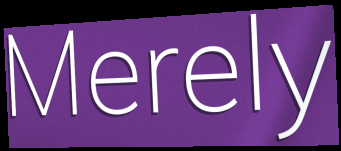
Merely